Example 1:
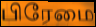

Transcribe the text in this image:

பிரேமை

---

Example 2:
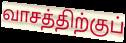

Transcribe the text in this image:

வாசத்திற்குப்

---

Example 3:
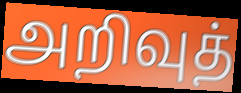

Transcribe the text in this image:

அறிவுத்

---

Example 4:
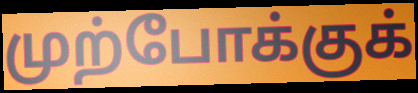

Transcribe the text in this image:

முற்போக்குக்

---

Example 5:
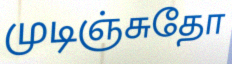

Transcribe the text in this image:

முடிஞ்சுதோ